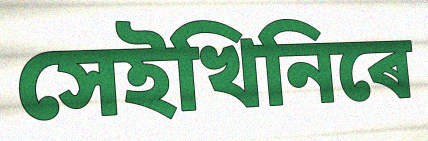
সেইখিনিৰে